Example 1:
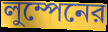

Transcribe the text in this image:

লুম্পেনের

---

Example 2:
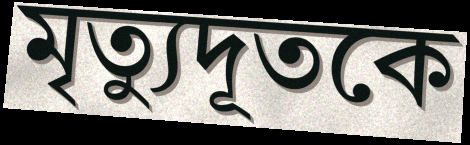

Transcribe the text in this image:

মৃত্যুদূতকে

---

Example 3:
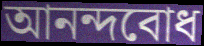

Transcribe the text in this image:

আনন্দবোধ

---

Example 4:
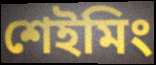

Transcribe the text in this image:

শেইমিং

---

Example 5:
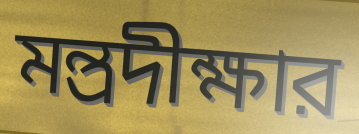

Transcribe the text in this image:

মন্ত্রদীক্ষার